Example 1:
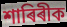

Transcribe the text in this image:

শাৰিৰীক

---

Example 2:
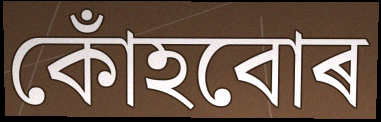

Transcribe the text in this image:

কোঁহবোৰ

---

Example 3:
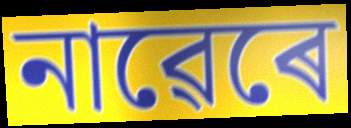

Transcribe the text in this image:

নাৱেৰে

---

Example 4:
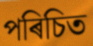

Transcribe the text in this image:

পৰিচিত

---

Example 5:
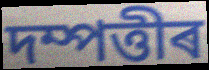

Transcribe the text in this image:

দম্পত্তীৰ